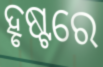
ହୃଷ୍ଟରେ